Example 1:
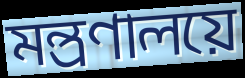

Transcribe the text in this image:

মন্ত্ৰণালয়ে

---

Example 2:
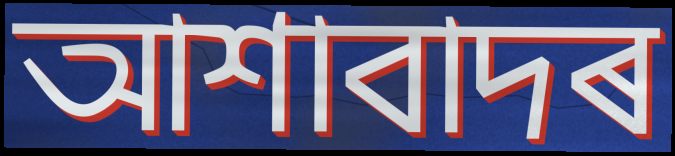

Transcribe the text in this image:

আশাবাদৰ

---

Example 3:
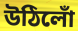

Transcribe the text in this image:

উঠিলোঁ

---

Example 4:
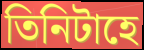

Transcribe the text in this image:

তিনিটাহে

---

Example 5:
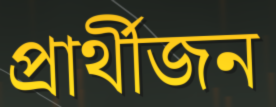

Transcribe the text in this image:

প্ৰাৰ্থীজন